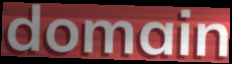
domain